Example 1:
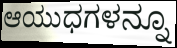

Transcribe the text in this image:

ಆಯುಧಗಳನ್ನೂ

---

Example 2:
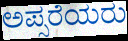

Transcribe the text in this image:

ಅಪ್ಸರೆಯರು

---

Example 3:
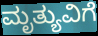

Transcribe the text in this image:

ಮೃತ್ಯುವಿಗೆ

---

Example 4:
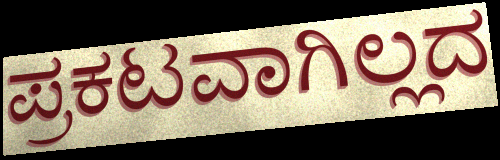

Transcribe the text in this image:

ಪ್ರಕಟವಾಗಿಲ್ಲದ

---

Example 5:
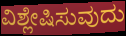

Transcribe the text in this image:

ವಿಶ್ಲೇಷಿಸುವುದು